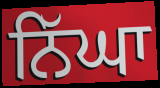
ਨਿੱਘਾ